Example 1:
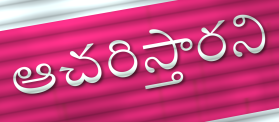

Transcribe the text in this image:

ఆచరిస్తారని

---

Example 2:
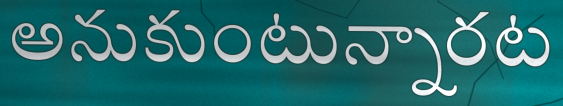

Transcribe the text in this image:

అనుకుంటున్నారట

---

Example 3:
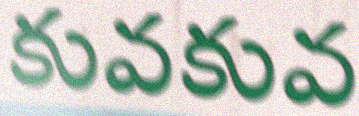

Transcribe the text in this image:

కువకువ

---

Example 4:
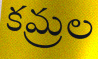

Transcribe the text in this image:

కమ్రల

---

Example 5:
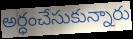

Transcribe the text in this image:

అర్ధంచేసుకున్నారు